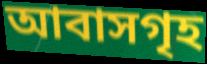
আবাসগৃহ